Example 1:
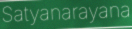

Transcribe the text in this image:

Satyanarayana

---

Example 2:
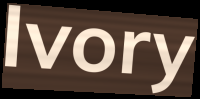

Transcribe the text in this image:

Ivory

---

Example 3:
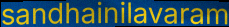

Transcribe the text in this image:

sandhainilavaram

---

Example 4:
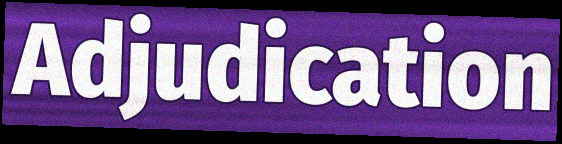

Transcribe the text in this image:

Adjudication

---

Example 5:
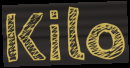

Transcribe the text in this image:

Kilo